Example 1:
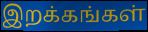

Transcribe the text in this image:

இறக்கங்கள்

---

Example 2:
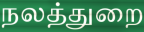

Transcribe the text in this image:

நலத்துறை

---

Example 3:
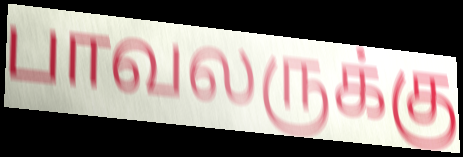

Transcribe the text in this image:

பாவலருக்கு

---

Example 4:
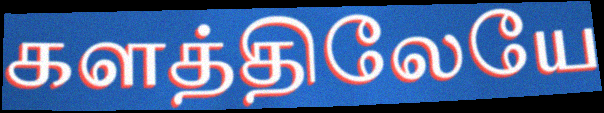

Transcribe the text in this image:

களத்திலேயே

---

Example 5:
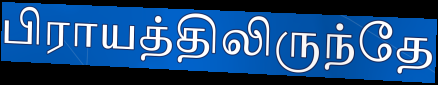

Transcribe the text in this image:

பிராயத்திலிருந்தே